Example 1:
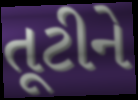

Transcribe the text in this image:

તૂટીને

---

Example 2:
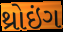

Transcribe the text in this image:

થ્રોઇંગ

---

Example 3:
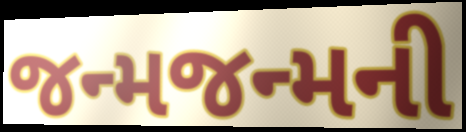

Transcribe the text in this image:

જન્મજન્મની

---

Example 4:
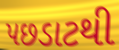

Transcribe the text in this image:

પછડાટથી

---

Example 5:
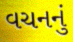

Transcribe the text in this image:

વચનનું